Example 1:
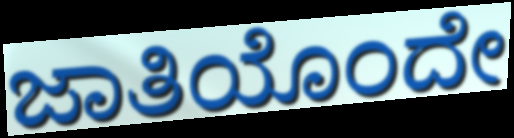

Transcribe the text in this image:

ಜಾತಿಯೊಂದೇ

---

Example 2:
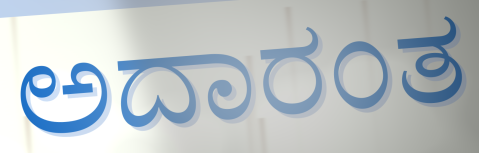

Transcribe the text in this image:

ಅದಾರಂತ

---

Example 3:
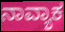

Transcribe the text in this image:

ನಾವ್ಯಾಕ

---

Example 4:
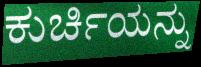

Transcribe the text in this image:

ಕುರ್ಚಿಯನ್ನು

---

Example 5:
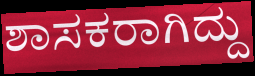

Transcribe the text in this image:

ಶಾಸಕರಾಗಿದ್ದು